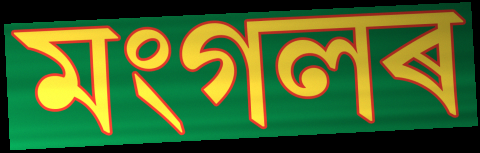
মংগলৰ